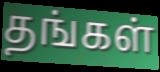
தங்கள்